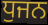
ਧੁਜਨ